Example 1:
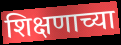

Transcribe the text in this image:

शिक्षणाच्या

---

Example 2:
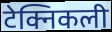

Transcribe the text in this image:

टेक्निकली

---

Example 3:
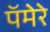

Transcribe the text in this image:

पॅमेरे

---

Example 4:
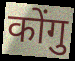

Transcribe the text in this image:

कोंगु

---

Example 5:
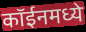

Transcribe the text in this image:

कॉईनमध्ये